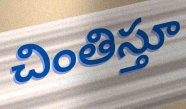
చింతిస్తూ